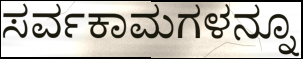
ಸರ್ವಕಾಮಗಳನ್ನೂ